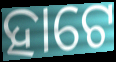
ହାଟେ